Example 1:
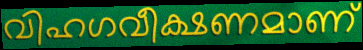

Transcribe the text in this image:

വിഹഗവീക്ഷണമാണ്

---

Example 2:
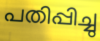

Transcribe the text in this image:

പതിപ്പിച്ചു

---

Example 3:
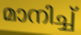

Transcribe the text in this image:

മാനിച്ച്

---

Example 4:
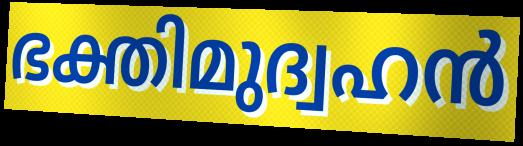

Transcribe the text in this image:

ഭക്തിമുദ്വഹൻ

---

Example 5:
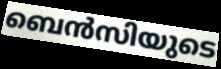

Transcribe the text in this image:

ബെൻസിയുടെ